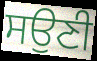
ਸਉਣੀ